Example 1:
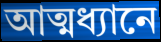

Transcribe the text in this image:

আত্মধ্যানে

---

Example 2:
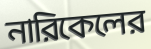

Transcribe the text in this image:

নারিকেলের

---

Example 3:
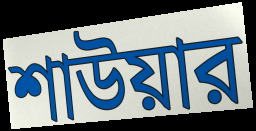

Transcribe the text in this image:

শাউয়ার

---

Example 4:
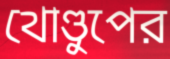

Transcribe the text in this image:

থোণ্ডুপের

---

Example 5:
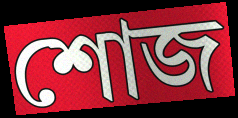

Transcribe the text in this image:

শোজ